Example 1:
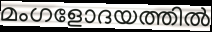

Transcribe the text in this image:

മംഗളോദയത്തിൽ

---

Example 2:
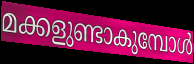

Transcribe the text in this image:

മക്കളുണ്ടാകുമ്പോൾ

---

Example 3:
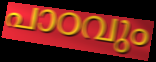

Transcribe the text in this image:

പാഠവും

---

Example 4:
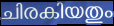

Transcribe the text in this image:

ചിരകിയതും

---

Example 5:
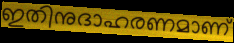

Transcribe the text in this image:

ഇതിനുദാഹരണമാണ്